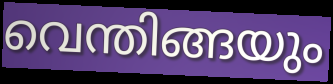
വെന്തിങ്ങയും